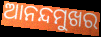
ଆନନ୍ଦମୁଖର